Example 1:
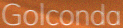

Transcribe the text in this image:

Golconda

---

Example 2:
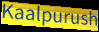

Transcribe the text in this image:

Kaalpurush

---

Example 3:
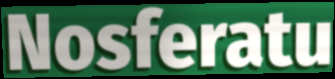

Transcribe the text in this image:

Nosferatu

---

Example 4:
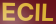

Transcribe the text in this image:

ECIL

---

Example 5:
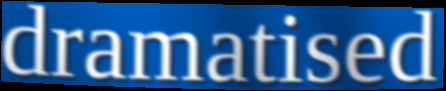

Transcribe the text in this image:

dramatised